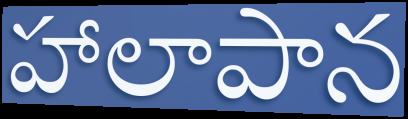
హాలాపాన